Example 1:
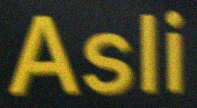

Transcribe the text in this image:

Asli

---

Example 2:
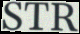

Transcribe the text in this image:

STR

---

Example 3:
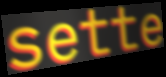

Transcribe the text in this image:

sette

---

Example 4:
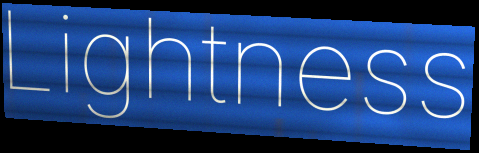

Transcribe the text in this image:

Lightness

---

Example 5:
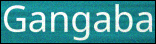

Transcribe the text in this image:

Gangaba